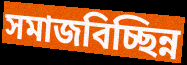
সমাজবিচ্ছিন্ন